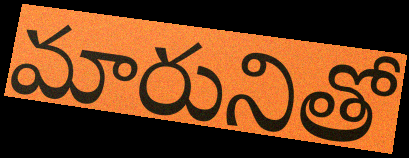
మారునితో